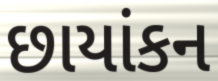
છાયાંકન